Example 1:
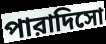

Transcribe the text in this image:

পারাদিসো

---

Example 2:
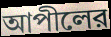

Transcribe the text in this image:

আপীলের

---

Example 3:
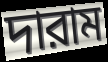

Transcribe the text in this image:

দারাম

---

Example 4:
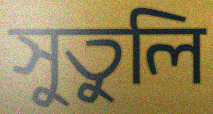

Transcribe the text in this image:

সুতুলি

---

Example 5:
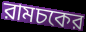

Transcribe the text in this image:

রামচকের